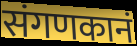
संगणकानं